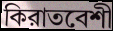
কিরাতবেশী